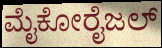
ಮೈಕೋರೈಜಲ್